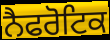
ਨੈਫਰੋਟਿਕ